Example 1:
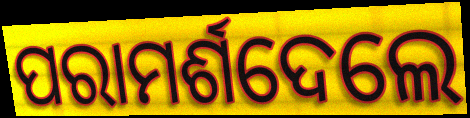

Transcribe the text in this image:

ପରାମର୍ଶଦେଲେ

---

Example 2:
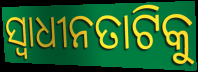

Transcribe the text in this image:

ସ୍ୱାଧୀନତାଟିକୁ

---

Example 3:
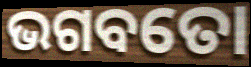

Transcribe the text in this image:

ଭଗବତୋ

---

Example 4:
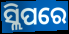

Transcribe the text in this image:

ସ୍ଲିପରେ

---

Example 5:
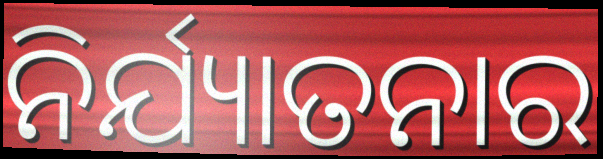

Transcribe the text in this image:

ନିର୍ଯ୍ୟାତନାର